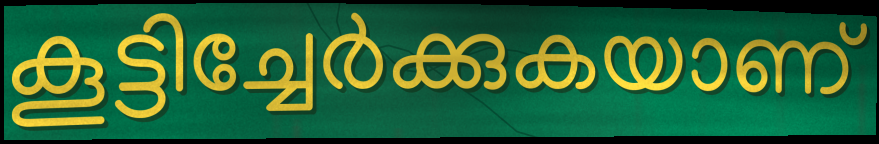
കൂട്ടിച്ചേർക്കുകയാണ്